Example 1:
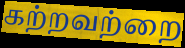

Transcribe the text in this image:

கற்றவற்றை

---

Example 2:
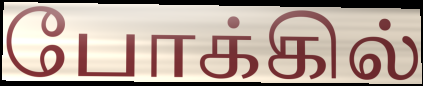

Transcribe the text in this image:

போக்கில்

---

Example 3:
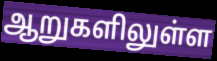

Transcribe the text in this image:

ஆறுகளிலுள்ள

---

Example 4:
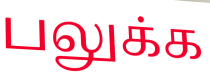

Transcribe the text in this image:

பலுக்க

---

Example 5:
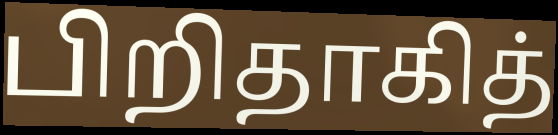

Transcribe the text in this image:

பிறிதாகித்